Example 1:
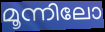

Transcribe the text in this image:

മൂന്നിലോ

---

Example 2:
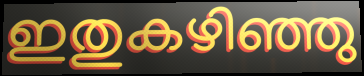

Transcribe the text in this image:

ഇതുകഴിഞ്ഞു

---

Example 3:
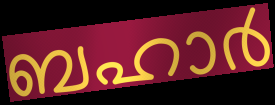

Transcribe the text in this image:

ബഹാർ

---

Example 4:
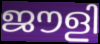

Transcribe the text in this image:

ജൗളി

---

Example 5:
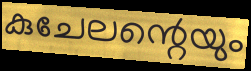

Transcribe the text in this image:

കുചേലന്റെയും